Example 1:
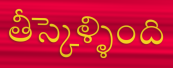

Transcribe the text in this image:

తీస్కెళ్ళింది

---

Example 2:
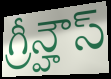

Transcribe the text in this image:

గ్రీన్హౌస్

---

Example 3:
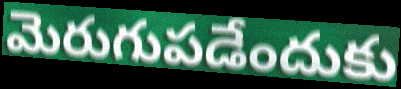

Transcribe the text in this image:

మెరుగుపడేందుకు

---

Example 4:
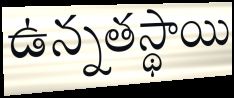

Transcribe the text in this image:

ఉన్నతస్థాయి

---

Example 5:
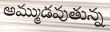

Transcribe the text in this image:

అమ్ముడవుతున్న